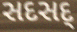
સદસદ્